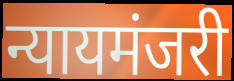
न्यायमंजरी